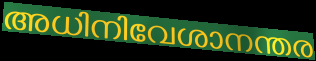
അധിനിവേശാനന്തര